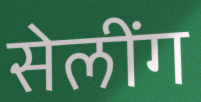
सेलींग